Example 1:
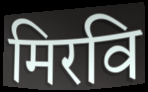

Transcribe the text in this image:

मिरवि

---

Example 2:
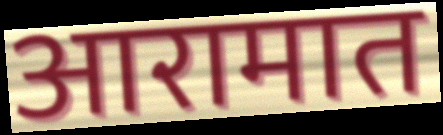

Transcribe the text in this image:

आरामात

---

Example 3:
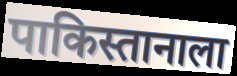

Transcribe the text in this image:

पाकिस्तानाला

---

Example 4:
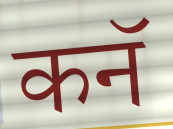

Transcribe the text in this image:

कनॅ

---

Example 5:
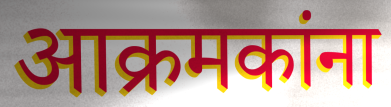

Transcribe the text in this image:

आक्रमकांना